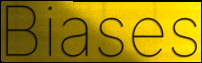
Biases